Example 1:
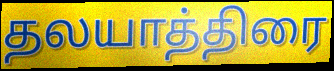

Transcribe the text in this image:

தலயாத்திரை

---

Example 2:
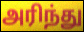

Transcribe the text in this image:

அரிந்து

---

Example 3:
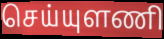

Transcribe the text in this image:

செய்யுளணி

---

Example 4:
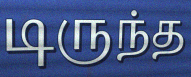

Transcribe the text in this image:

டிருந்த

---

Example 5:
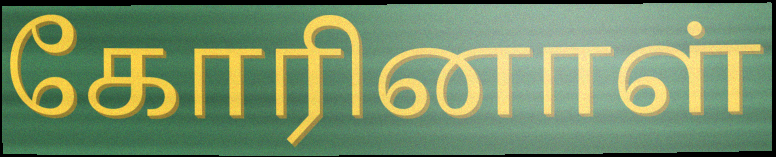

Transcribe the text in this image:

கோரினாள்